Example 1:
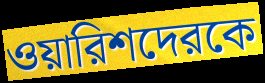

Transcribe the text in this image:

ওয়ারিশদেরকে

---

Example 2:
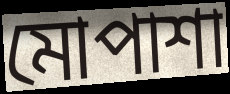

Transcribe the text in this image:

মোপাশা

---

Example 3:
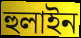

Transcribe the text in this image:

হুলাইন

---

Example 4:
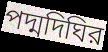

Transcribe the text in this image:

পদ্মদিঘির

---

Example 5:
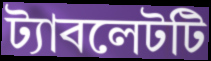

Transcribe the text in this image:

ট্যাবলেটটি